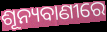
ଶୂନ୍ୟବାଣୀରେ